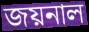
জয়নাল